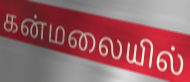
கன்மலையில்